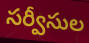
సర్వీసుల